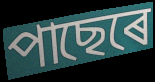
পাছেৰে